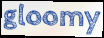
gloomy